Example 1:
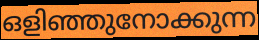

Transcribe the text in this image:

ഒളിഞ്ഞുനോക്കുന്ന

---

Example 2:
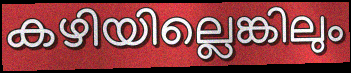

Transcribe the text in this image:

കഴിയില്ലെങ്കിലും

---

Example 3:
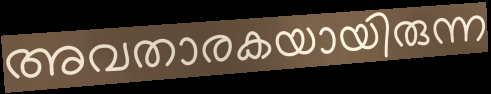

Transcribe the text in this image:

അവതാരകയായിരുന്ന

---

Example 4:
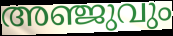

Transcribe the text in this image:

അഞ്ജുവും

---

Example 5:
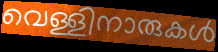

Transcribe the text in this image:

വെള്ളിനാരുകൾ